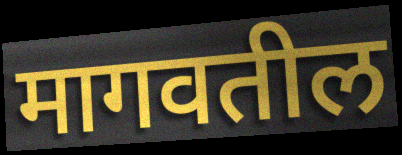
मागवतील